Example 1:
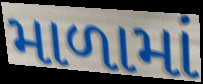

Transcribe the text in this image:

માળામાં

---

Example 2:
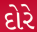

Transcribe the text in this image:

દોરે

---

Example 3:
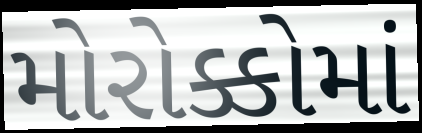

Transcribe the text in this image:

મોરોક્કોમાં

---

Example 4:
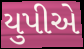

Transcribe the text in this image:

યુપીએ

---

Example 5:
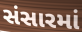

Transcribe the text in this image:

સંસારમાં